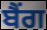
ਬੈਂਗ